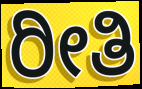
ರೀತಿ